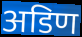
अडिण